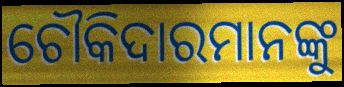
ଚୌକିଦାରମାନଙ୍କୁ